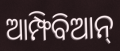
ଆମ୍ଫିବିଆନ୍